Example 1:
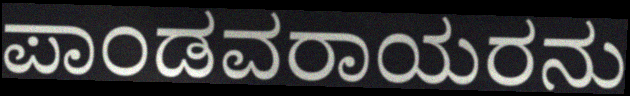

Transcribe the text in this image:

ಪಾಂಡವರಾಯರನು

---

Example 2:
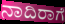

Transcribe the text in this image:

ನಾದಿರಾಗೆ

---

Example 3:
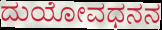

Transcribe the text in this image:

ದುಯೋವಧನನ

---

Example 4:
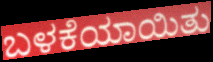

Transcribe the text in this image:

ಬಳಕೆಯಾಯಿತು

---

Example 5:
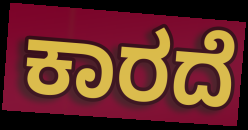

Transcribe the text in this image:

ಕಾರದೆ